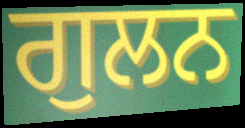
ਗੁਲਨ